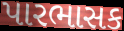
પારભાસક